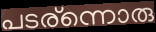
പടര്ന്നൊരു